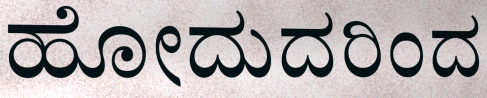
ಹೋದುದರಿಂದ